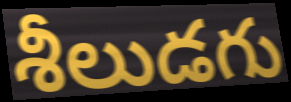
శీలుడగు